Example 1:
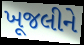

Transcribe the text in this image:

ખૂજલીને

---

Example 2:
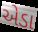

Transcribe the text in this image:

એડા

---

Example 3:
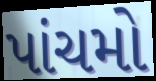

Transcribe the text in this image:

પાંચમો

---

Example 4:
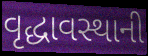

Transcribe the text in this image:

વૃદ્ધાવસ્થાની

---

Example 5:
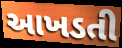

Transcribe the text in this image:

આખડતી